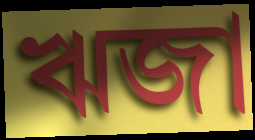
ঋজা